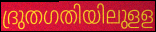
ദ്രുതഗതിയിലുളള